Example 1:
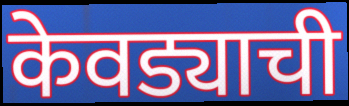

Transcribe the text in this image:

केवड्याची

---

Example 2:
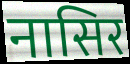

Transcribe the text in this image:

नासिर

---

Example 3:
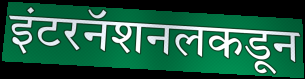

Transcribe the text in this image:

इंटरनॅशनलकडून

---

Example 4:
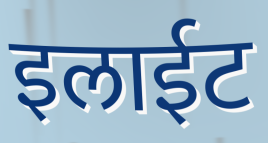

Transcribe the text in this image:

इलाईट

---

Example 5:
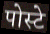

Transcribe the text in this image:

पोस्टे